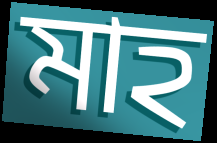
মাহ